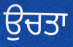
ਉਚਤਾ